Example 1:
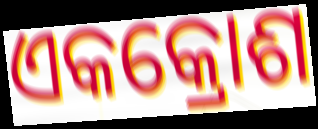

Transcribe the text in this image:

ଏକକ୍ରୋଶ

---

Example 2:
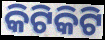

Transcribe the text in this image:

କିଟିକିଟି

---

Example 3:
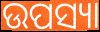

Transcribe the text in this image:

ଉପସ୍ୟା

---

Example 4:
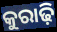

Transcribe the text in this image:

କୁରାଢ଼ି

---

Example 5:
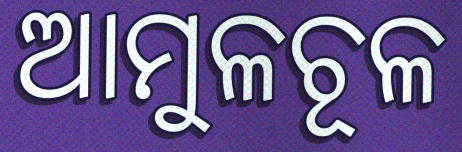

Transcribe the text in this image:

ଆମୁଳଚୂଳ